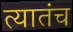
त्यातंच